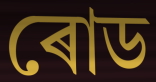
ৰোড